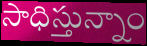
సాధిస్తున్నాం